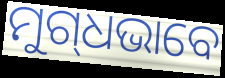
ମୁଗ୍‌ଧଭାବେ